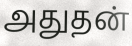
அதுதன்